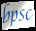
bpsc